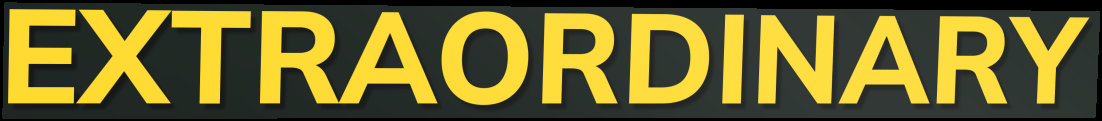
EXTRAORDINARY